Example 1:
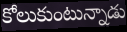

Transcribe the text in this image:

కోలుకుంటున్నాడు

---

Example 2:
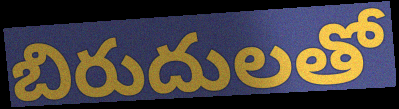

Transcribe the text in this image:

బిరుదులతో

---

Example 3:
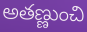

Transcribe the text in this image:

అతణ్ణుంచి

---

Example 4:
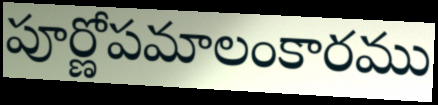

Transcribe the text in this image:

పూర్ణోపమాలంకారము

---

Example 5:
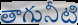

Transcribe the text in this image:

తాగునీటి